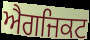
ਐਗਜਿਕਟ